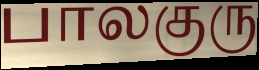
பாலகுரு